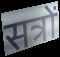
सत्रों